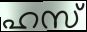
ഹസ്